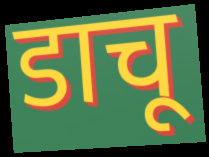
डाचू